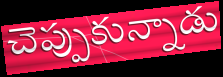
చెప్పుకున్నాడు